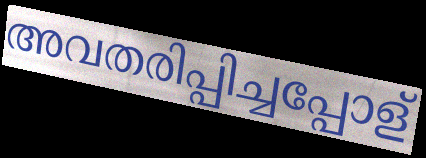
അവതരിപ്പിച്ചപ്പോള്